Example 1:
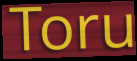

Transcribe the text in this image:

Toru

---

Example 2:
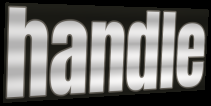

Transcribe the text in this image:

handle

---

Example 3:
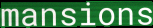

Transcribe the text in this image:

mansions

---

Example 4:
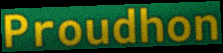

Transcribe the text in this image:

Proudhon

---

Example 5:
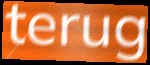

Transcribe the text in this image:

terug